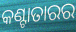
କଣ୍ଟାତାରର